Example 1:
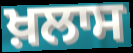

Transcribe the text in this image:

ਖ਼ਲਾਸ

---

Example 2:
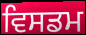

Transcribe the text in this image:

ਵਿਸਡਮ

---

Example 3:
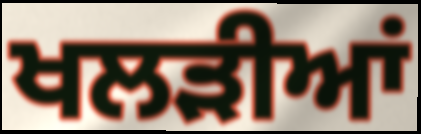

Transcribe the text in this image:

ਖਲੜੀਆਂ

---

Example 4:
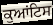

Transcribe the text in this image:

ਕੁਆਂਟਿਸ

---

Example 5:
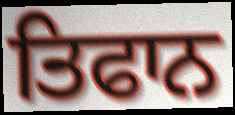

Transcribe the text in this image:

ਤਿਫਾਨ